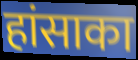
हांसाका